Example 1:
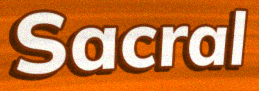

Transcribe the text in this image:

Sacral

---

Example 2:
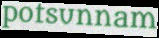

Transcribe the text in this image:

potsunnam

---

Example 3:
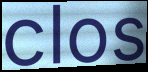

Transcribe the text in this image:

clos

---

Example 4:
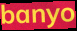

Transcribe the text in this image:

banyo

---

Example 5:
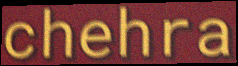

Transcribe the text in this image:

chehra